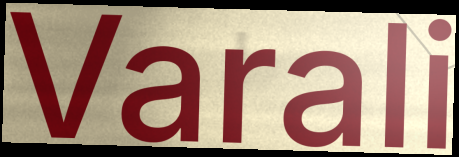
Varali